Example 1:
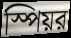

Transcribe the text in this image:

স্পিয়র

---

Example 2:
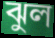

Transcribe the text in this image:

ঝুল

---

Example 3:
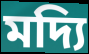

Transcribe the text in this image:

মদ্যি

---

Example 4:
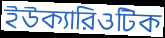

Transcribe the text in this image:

ইউক্যারিওটিক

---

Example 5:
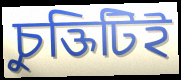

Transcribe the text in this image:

চুক্তিটিই